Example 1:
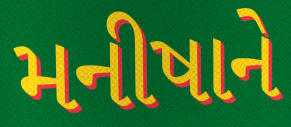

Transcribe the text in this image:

મનીષાને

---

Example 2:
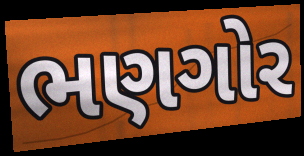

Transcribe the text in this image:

ભણગોર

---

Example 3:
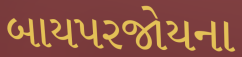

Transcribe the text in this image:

બાયપરજોયના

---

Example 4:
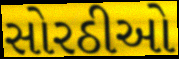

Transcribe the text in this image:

સોરઠીઓ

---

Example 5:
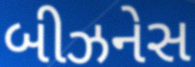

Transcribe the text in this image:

બીઝનેસ